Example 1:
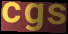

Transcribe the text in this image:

cgs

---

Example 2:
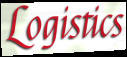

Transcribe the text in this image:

Logistics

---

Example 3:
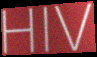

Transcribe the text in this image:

HIV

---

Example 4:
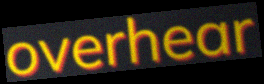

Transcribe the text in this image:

overhear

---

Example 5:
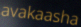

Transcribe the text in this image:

avakaasha